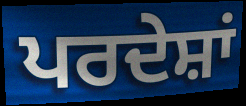
ਪਰਦੇਸ਼ਾਂ